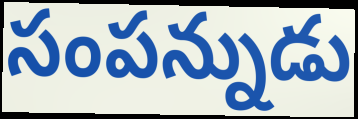
సంపన్నుడు